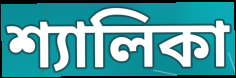
শ্যালিকা